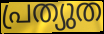
പ്രത്യുത